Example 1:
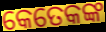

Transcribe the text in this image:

କେତେକଙ୍କ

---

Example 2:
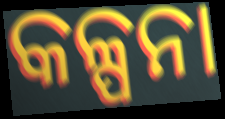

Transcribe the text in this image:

କଳ୍ପନା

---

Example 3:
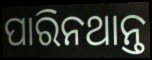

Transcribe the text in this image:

ପାରିନଥାନ୍ତ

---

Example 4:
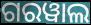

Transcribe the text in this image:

ଗରୱାଲ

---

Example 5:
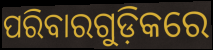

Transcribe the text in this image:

ପରିବାରଗୁଡ଼ିକରେ